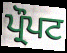
ਪ੍ਰੌਪਟ